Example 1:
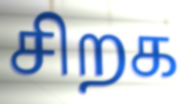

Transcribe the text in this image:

சிறக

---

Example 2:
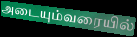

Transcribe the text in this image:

அடையும்வரையில்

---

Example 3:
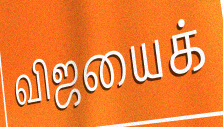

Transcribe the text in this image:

விஜயைக்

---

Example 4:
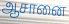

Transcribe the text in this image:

ஆசானை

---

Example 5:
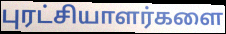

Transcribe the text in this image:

புரட்சியாளர்களை